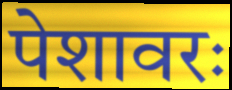
पेशावरः